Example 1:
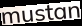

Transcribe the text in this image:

mustan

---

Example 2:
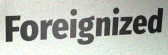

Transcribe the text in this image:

Foreignized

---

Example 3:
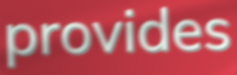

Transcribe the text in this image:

provides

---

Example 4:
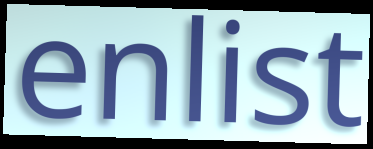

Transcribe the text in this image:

enlist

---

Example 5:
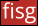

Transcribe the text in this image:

fisg